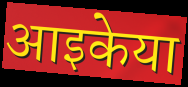
आइकेया